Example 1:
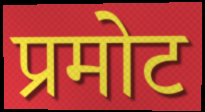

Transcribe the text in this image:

प्रमोट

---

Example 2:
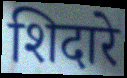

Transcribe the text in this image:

शिदारे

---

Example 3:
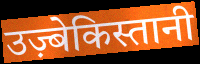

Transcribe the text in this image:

उज़्बेकिस्तानी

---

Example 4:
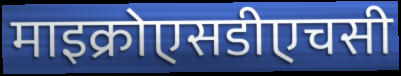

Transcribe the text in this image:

माइक्रोएसडीएचसी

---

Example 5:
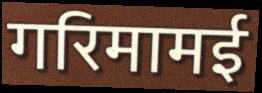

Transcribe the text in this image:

गरिमामई